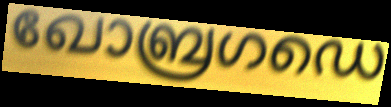
ഖോബ്രഗഡെ